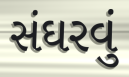
સંઘરવું